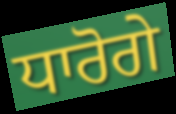
ਧਾਰੋਗੇ